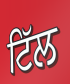
ਟਿੱਲ